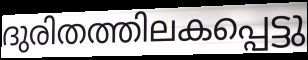
ദുരിതത്തിലകപ്പെട്ടു